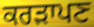
ਕਰੜਾਪਣ